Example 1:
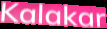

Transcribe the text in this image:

Kalakar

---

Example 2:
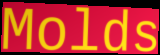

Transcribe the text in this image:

Molds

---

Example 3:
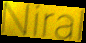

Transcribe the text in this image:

Niral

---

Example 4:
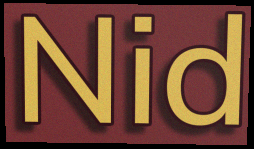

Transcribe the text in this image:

Nid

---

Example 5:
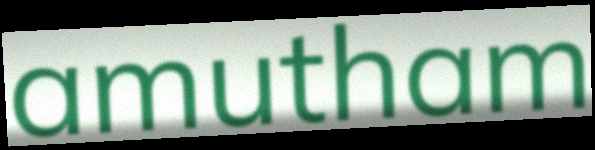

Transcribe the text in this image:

amutham